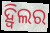
ହ୍ୱିଲର